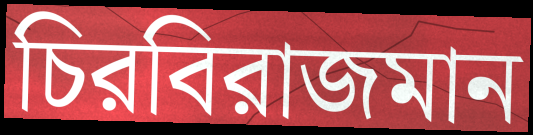
চিরবিরাজমান